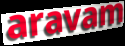
aravam